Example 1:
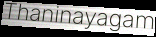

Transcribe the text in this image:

Thaninayagam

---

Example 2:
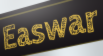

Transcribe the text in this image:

Easwar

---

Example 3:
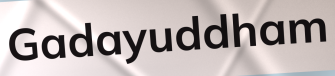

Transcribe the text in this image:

Gadayuddham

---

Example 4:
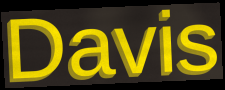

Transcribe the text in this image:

Davis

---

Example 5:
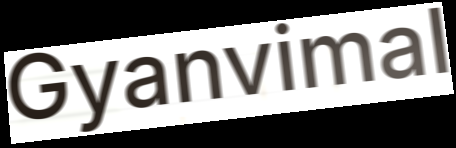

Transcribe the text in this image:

Gyanvimal